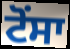
ਟੋਂਸਾ